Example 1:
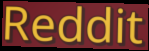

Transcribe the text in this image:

Reddit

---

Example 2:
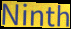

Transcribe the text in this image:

Ninth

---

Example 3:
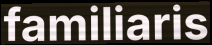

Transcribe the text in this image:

familiaris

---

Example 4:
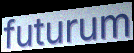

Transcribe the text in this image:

futurum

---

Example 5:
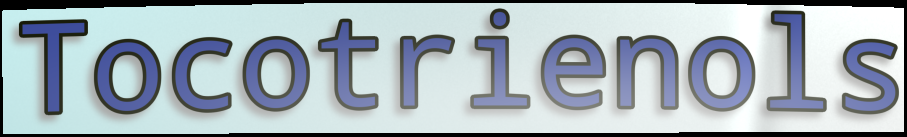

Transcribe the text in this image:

Tocotrienols